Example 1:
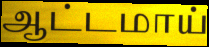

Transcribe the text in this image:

ஆட்டமாய்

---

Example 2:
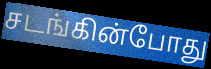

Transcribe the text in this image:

சடங்கின்போது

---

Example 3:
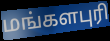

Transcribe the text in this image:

மங்களபுரி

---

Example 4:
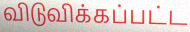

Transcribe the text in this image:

விடுவிக்கப்பட்ட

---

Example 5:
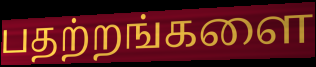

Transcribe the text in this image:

பதற்றங்களை